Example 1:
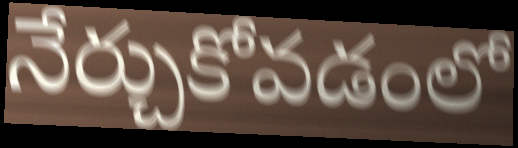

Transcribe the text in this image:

నేర్చుకోవడంలో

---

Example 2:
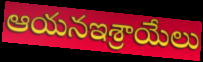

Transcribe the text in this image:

ఆయనఇశ్రాయేలు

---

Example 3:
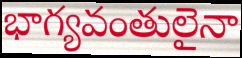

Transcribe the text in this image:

భాగ్యవంతులైనా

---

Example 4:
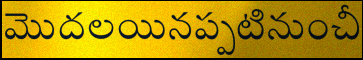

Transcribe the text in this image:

మొదలయినప్పటినుంచీ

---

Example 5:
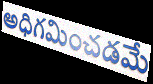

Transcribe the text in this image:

అధిగమించడమే